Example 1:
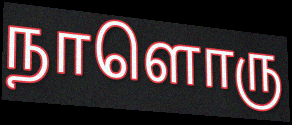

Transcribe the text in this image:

நாளொரு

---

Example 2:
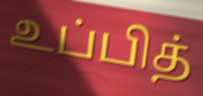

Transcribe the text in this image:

உப்பித்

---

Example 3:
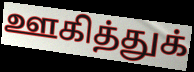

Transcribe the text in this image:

ஊகித்துக்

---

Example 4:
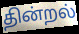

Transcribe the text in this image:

தின்றல்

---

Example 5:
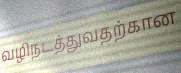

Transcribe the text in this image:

வழிநடத்துவதற்கான